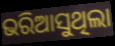
ଭରିଆସୁଥିଲା